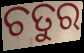
ଚତୁର